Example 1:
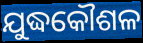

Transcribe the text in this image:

ଯୁଦ୍ଧକୌଶଳ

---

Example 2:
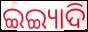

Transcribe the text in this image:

ଇଇ୍ୟାଦି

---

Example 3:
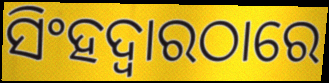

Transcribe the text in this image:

ସିଂହଦ୍ୱାରଠାରେ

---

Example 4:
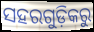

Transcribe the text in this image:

ସହରଗୁଡ଼ିକରୁ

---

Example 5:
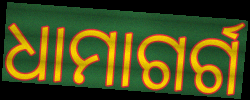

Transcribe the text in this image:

ଧାମାଗର୍ଗ